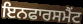
ਇਨਫਾਰਸਮੈਂਟ